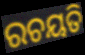
ରଚୟତି